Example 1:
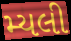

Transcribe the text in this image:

મ્યલી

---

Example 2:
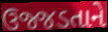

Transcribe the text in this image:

ઉજ્જડતાને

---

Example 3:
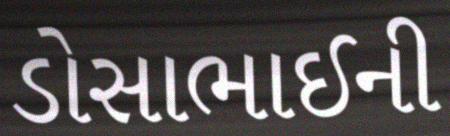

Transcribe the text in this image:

ડોસાભાઈની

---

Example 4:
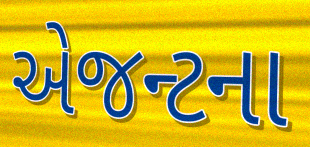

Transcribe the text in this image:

એજન્ટના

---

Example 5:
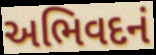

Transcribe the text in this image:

અભિવદનં